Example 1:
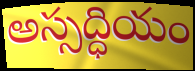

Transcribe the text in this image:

అస్సద్ధియం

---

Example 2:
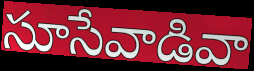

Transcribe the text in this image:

సూసేవాడివా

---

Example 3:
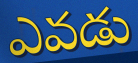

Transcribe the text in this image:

ఎవడు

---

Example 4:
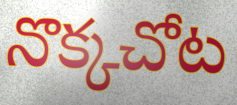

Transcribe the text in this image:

నొక్కచోట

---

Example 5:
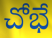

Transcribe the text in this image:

చోభే